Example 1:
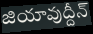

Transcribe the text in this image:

జియావుద్దీన్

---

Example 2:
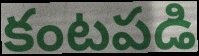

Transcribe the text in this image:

కంటపడి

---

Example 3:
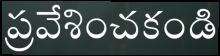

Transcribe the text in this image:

ప్రవేశించకండి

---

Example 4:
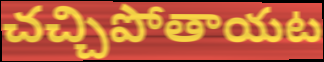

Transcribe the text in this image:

చచ్చిపోతాయట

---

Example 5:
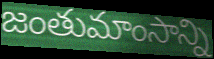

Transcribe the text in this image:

జంతుమాంసాన్ని